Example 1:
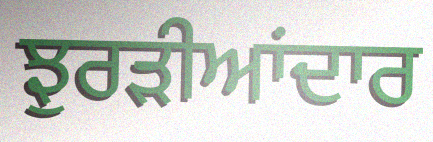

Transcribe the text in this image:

ਝੁਰੜੀਆਂਦਾਰ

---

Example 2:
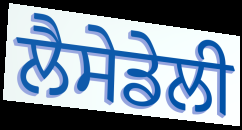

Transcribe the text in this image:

ਲੈਸੇਡੇਲੀ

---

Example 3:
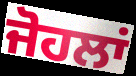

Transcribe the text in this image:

ਜੋਹਲਾਂ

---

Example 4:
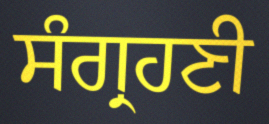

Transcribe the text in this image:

ਸੰਗ੍ਰਹਣੀ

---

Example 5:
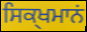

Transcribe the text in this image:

ਸਿਕ੍ਖਮਾਨਂ